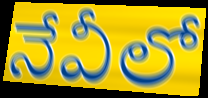
నేవీలో